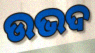
ଉଭଦ